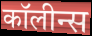
कॉलीन्स